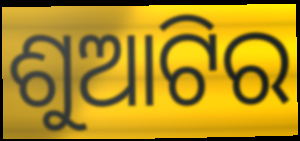
ଶୁଆଟିର